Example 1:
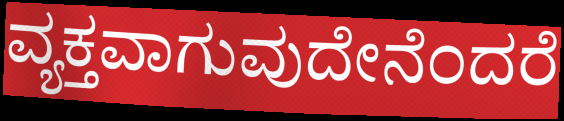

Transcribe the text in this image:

ವ್ಯಕ್ತವಾಗುವುದೇನೆಂದರೆ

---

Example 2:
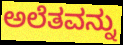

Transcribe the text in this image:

ಅಲೆತವನ್ನು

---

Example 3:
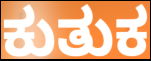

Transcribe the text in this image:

ಕುತುಕ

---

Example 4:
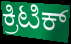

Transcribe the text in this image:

ಕ್ರಿಟಿಕ್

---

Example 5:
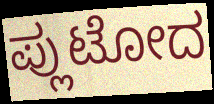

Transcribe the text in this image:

ಪ್ಲುಟೋದ